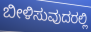
ಬೀಳಿಸುವುದರಲ್ಲಿ